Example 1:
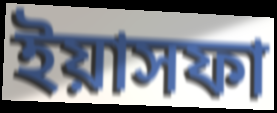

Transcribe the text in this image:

ইয়াসফা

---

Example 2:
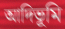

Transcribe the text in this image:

আদিভূমি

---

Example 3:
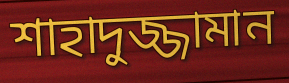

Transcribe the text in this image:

শাহাদুজ্জামান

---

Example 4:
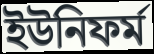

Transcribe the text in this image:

ইউনিফর্ম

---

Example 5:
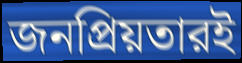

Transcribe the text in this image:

জনপ্রিয়তারই